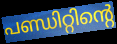
പണ്ഡിറ്റിന്റെ